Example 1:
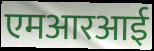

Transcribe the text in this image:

एमआरआई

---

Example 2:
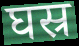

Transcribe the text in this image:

घस्र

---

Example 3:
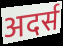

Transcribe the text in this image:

अदर्स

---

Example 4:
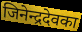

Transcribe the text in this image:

जिनेन्द्रदेवका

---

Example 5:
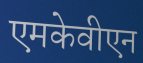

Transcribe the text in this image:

एमकेवीएन